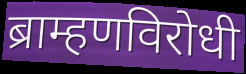
ब्राम्हणविरोधी